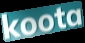
koota